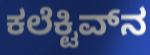
ಕಲೆಕ್ಟಿವ್‌ನ